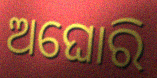
ଅଘୋରି